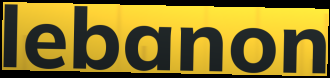
lebanon